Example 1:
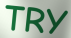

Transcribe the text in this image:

TRY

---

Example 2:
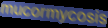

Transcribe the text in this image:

mucormycosis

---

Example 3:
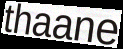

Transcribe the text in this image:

thaane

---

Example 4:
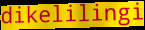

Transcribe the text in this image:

dikelilingi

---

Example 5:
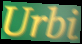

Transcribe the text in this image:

Urbi